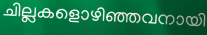
ചില്ലകളൊഴിഞ്ഞവനായി